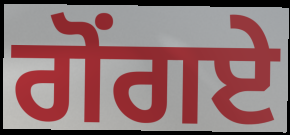
ਗੋਂਗਏ